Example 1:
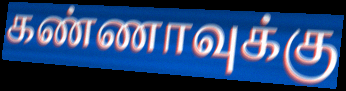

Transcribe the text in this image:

கண்ணாவுக்கு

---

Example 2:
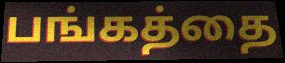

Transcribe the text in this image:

பங்கத்தை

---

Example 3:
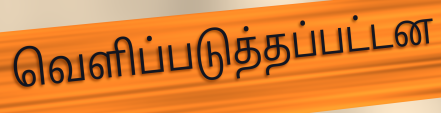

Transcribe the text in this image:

வெளிப்படுத்தப்பட்டன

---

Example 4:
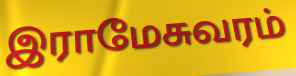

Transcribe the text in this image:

இராமேசுவரம்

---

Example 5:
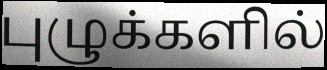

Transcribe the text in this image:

புழுக்களில்